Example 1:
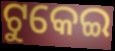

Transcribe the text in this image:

ଟୁକେଇ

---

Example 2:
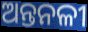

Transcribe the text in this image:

ଅନ୍ତନଳୀ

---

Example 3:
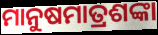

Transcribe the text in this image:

ମାନୁଷମାତ୍ରଶଙ୍କା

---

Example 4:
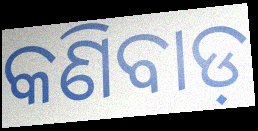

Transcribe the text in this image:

କଣିବାଡ଼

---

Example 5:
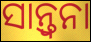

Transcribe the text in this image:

ସାନ୍ତ୍ଵନା